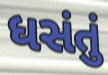
ધસંતું